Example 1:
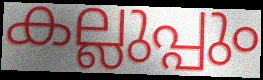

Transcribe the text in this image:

കല്ലുപ്പും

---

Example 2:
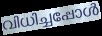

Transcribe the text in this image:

വിധിച്ചപ്പോൾ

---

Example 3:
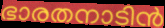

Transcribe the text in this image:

ഭാരതനാടിൻ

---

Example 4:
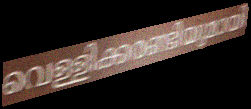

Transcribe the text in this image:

വെള്ളിക്കരണ്ടിയുമായി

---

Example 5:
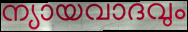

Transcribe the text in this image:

ന്യായവാദവും